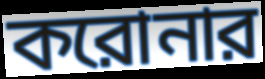
করোনার